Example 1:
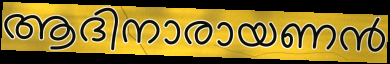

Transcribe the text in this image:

ആദിനാരായണൻ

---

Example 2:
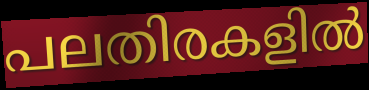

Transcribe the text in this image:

പലതിരകളിൽ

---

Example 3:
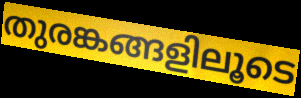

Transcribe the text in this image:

തുരങ്കങ്ങളിലൂടെ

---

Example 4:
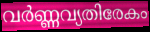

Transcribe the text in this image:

വർണ്ണവ്യതിരേകം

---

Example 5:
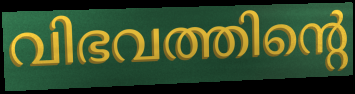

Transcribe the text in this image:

വിഭവത്തിന്റെ